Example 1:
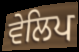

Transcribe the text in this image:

ਵੇਲਿਪ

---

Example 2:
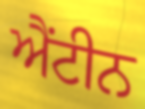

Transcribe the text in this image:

ਐਂਟੀਨ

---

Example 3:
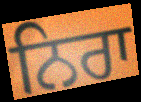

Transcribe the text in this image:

ਨਿਰਾ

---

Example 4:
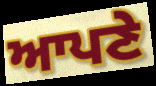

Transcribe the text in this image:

ਆਪਣੇ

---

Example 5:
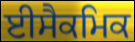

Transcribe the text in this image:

ਈਸੈਕਮਿਕ